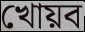
খোয়ব